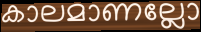
കാലമാണല്ലോ